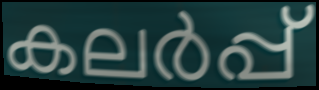
കലർപ്പ്